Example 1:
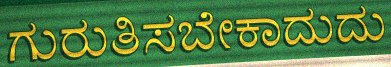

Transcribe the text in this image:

ಗುರುತಿಸಬೇಕಾದುದು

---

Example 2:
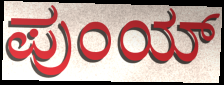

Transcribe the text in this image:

ಪುಂಯ್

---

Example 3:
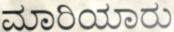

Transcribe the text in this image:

ಮಾರಿಯಾರು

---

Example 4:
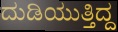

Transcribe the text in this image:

ದುಡಿಯುತ್ತಿದ್ದ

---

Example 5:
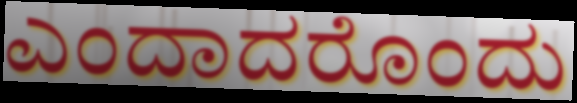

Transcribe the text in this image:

ಎಂದಾದರೊಂದು